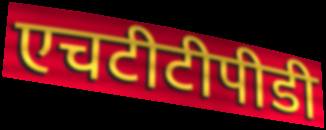
एचटीटीपीडी